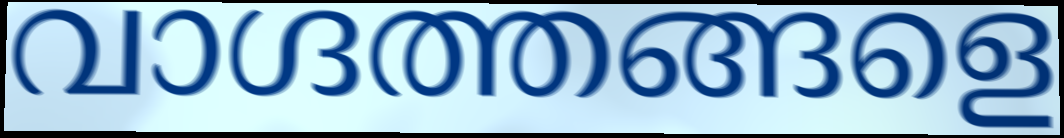
വാഗ്ദത്തങ്ങളെ